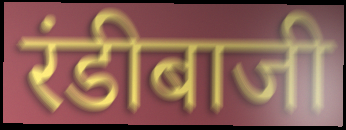
रंडीबाजी